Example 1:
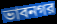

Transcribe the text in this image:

ভাবনগর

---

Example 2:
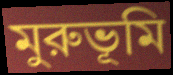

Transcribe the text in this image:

মুরুভূমি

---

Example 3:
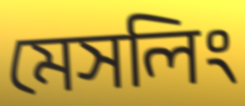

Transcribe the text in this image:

মেসলিং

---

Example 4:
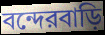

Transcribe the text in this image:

বন্দেরবাড়ি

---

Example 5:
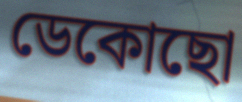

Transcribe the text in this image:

ডেকোছো